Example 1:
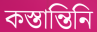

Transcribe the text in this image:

কস্তান্তিনি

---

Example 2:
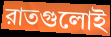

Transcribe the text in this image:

রাতগুলোই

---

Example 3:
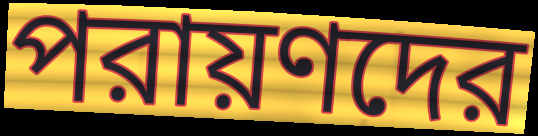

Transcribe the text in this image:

পরায়ণদের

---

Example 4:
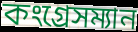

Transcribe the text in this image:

কংগ্রেসম্যান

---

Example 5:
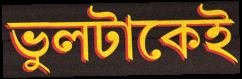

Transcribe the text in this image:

ভুলটাকেই